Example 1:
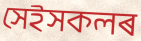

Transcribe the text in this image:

সেইসকলৰ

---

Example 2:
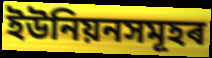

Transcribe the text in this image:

ইউনিয়নসমূহৰ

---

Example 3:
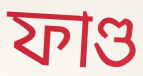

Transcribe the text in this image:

ফাণ্ড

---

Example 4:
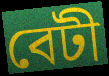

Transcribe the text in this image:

বেটী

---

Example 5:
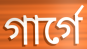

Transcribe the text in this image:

গাৰ্গে